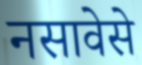
नसावेसे